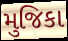
મુજિકા